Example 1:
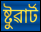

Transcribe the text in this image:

ষ্টুৱাৰ্ট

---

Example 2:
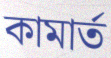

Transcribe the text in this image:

কামাৰ্ত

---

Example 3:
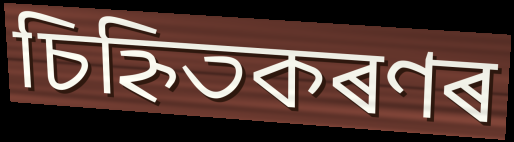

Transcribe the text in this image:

চিহ্নিতকৰণৰ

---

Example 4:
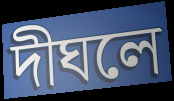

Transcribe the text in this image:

দীঘলে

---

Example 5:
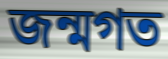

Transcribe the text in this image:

জন্মগত